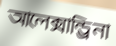
আলেক্সান্ড্রিনা